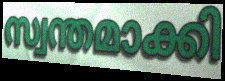
സ്വന്തമാക്കി